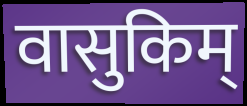
वासुकिम्